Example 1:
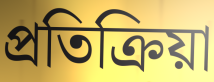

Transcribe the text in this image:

প্রতিক্রিয়া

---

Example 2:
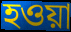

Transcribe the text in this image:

হওয়া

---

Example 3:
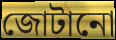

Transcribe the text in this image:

জোটানো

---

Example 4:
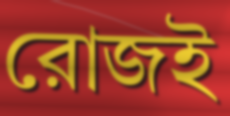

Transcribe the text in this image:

রোজই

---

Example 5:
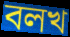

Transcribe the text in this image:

বলখ